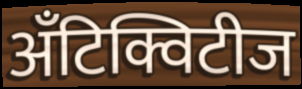
अँटिक्विटीज